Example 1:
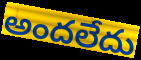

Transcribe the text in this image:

అందలేదు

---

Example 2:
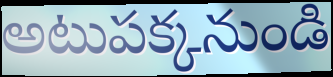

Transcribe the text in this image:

అటుపక్కనుండి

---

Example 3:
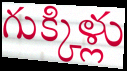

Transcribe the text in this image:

గుక్కిళ్లు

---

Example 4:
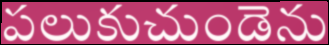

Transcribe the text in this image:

పలుకుచుండెను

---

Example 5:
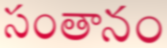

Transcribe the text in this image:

సంతానం